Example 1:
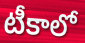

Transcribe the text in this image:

టీకాలో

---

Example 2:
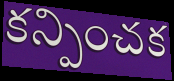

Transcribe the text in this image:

కన్పించక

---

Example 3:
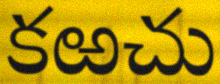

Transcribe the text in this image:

కఱచు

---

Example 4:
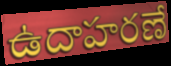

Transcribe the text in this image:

ఉదాహరణే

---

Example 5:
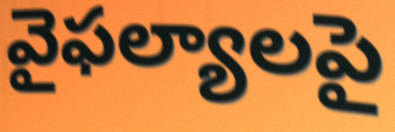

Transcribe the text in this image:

వైఫల్యాలపై